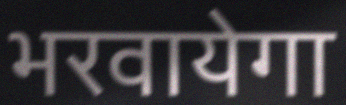
भरवायेगा